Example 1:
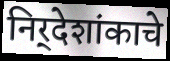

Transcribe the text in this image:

निर्देशांकाचे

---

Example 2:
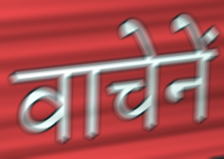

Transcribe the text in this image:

वाचेनें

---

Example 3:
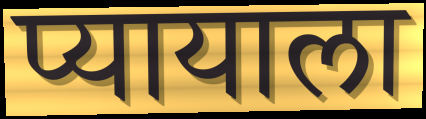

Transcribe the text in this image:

प्यायाला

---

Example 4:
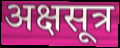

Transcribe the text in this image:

अक्षसूत्र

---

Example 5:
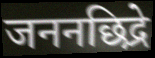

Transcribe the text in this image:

जननछिद्रे